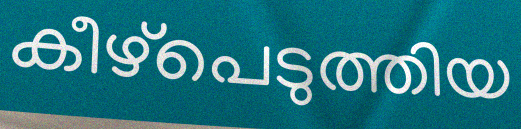
കീഴ്പെടുത്തിയ